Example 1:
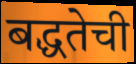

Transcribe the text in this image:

बद्धतेची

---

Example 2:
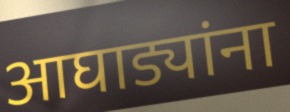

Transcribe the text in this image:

आघाड्यांना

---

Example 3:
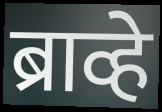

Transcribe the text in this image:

ब्राव्हे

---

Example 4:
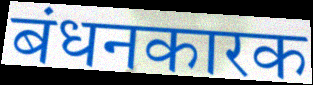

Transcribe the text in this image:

बंधनकारक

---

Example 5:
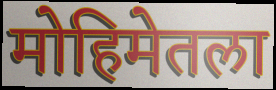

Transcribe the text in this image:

मोहिमेतला